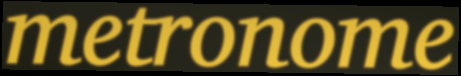
metronome